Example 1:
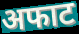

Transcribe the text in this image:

अफाट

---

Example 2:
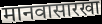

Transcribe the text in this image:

मानवासारखा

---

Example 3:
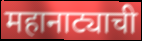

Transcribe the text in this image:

महानाट्याची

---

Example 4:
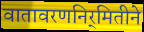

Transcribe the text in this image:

वातावरणनिर्मितीने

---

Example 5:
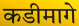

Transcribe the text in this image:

कडीमागे